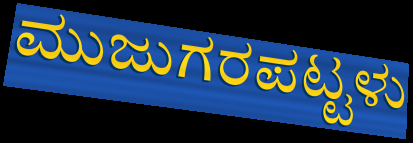
ಮುಜುಗರಪಟ್ಟಳು